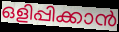
ഒളിപ്പിക്കാൻ